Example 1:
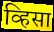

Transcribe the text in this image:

व्हिसा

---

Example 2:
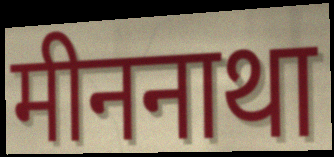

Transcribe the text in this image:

मीननाथा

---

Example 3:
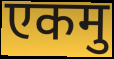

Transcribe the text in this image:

एकमु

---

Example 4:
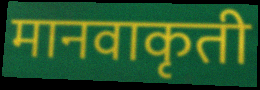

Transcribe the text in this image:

मानवाकृती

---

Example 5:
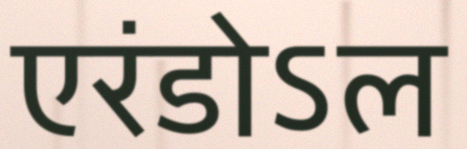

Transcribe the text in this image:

एरंडोऽल